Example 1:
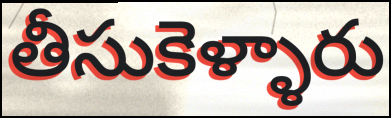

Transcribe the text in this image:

తీసుకెళ్ళారు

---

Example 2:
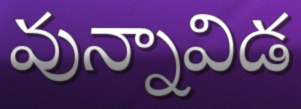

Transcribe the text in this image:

వున్నావిడ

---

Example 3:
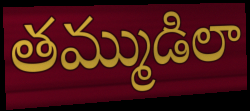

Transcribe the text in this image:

తమ్ముడిలా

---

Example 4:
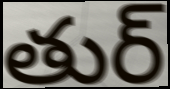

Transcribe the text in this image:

తుర్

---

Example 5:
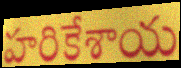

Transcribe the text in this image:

హరికేశాయ